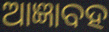
ଆଜ୍ଞାବହ